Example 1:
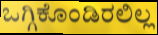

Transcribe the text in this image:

ಒಗ್ಗಿಕೊಂಡಿರಲಿಲ್ಲ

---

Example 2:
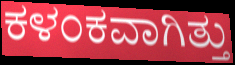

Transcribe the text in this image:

ಕಳಂಕವಾಗಿತ್ತು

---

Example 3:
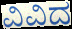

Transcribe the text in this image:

ವಿವಿದ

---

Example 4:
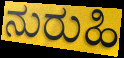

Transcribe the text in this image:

ನುರುಹಿ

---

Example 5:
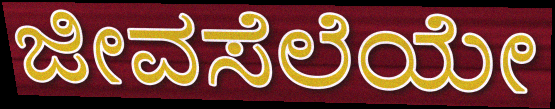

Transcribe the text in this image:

ಜೀವಸೆಲೆಯೇ